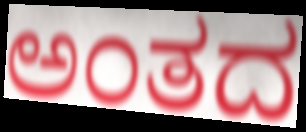
ಅಂತದ